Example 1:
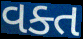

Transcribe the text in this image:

વક્ત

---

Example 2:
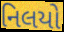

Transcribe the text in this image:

નિલયો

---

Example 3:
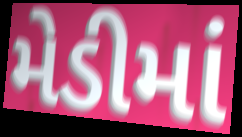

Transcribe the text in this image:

મેડીમાં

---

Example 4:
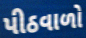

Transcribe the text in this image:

પીઠવાળો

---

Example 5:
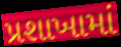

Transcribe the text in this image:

પ્રશાખામાં